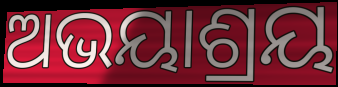
ଅଭୟାଶ୍ରୟ